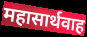
महासार्थवाह